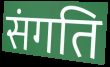
संगति